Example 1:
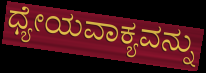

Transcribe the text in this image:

ಧ್ಯೇಯವಾಕ್ಯವನ್ನು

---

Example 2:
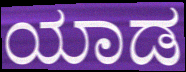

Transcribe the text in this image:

ಯಾಡ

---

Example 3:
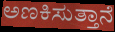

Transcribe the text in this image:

ಅಣಕಿಸುತ್ತಾನೆ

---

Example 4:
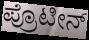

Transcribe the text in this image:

ಪ್ರೊಟೀನ್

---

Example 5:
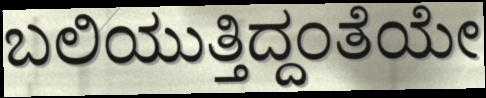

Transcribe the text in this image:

ಬಲಿಯುತ್ತಿದ್ದಂತೆಯೇ